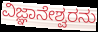
ವಿಜ್ಞಾನೇಶ್ವರನು